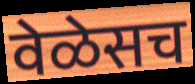
वेळेसच